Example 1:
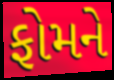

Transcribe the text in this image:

ફોમને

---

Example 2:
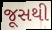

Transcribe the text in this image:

જૂસથી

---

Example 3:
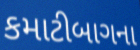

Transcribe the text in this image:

કમાટીબાગના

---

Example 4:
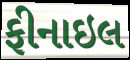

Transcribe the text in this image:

ફીનાઇલ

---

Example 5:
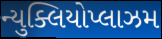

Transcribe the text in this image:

ન્યુક્લિયોપ્લાઝમ